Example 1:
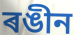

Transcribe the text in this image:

ৰঙীন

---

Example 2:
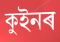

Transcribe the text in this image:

কুইনৰ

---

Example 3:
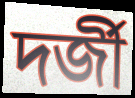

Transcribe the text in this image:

দৰ্জী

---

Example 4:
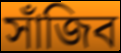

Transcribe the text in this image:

সাঁজিব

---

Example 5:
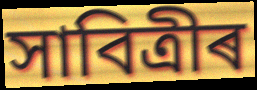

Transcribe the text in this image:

সাবিত্ৰীৰ